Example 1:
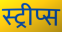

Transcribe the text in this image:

स्ट्रीप्स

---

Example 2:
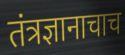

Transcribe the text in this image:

तंत्रज्ञानाचाच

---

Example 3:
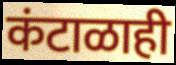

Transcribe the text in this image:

कंटाळाही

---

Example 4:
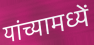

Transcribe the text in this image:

यांच्यामध्यें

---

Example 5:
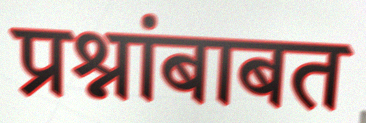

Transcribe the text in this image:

प्रश्नांबाबत